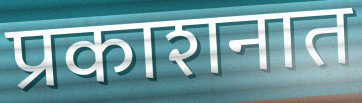
प्रकाशनात